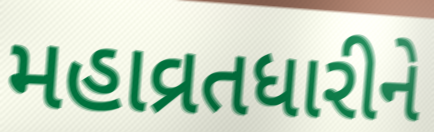
મહાવ્રતધારીને